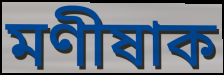
মণীষাক